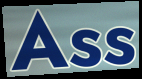
Ass